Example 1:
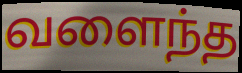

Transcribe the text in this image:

வளைந்த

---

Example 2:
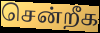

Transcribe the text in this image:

சென்றீக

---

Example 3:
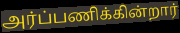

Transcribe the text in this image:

அர்ப்பணிக்கின்றார்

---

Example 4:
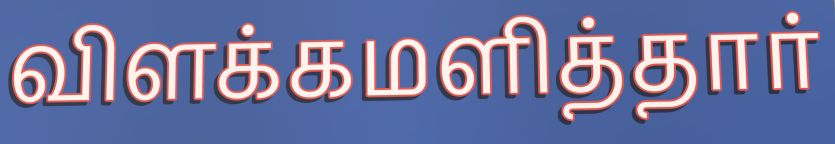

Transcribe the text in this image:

விளக்கமளித்தார்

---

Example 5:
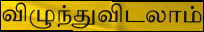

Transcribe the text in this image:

விழுந்துவிடலாம்